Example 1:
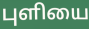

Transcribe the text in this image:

புளியை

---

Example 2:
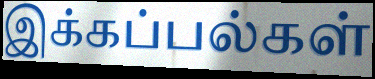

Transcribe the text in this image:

இக்கப்பல்கள்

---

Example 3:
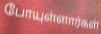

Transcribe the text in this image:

போயுள்ளார்கள்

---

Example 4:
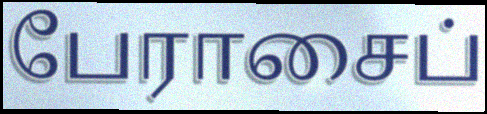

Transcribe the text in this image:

பேராசைப்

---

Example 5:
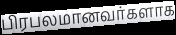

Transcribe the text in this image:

பிரபலமானவர்களாக